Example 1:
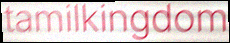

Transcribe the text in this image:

tamilkingdom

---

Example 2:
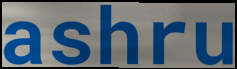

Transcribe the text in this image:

ashru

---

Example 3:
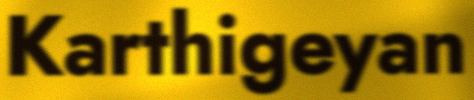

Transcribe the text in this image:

Karthigeyan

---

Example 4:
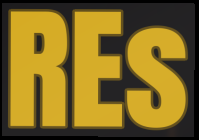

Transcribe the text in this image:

REs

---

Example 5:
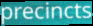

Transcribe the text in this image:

precincts